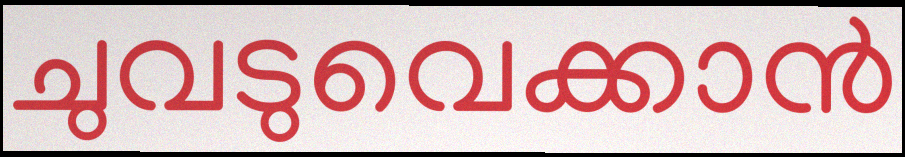
ചുവടുവെക്കാൻ